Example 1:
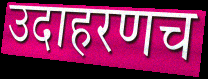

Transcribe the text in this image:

उदाहरणच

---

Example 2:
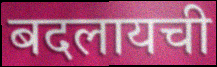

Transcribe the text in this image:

बदलायची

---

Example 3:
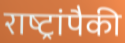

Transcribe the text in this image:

राष्ट्रांपैकी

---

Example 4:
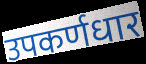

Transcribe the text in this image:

उपकर्णधार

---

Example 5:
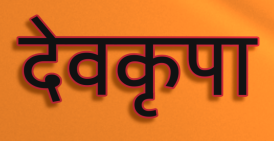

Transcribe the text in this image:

देवकृपा